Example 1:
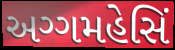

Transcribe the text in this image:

અગ્ગમહેસિં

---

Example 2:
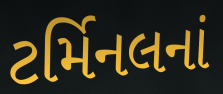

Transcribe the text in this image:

ટર્મિનલનાં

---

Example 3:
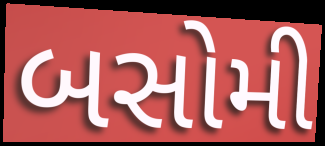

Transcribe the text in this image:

બસોમી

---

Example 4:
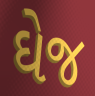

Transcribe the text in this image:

ઘેજ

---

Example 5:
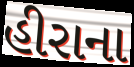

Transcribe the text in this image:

હીરાના